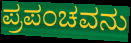
ಪ್ರಪಂಚವನು